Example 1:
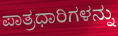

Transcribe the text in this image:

ಪಾತ್ರಧಾರಿಗಳನ್ನು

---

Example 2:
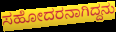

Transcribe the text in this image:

ಸಹೋದರನಾಗಿದ್ದನು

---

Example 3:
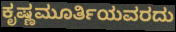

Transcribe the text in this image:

ಕೃಷ್ಣಮೂರ್ತಿಯವರದು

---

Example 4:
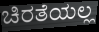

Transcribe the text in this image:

ಚಿರತೆಯಲ್ಲ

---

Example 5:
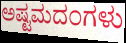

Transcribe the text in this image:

ಅಷ್ಟಮದಂಗಳು